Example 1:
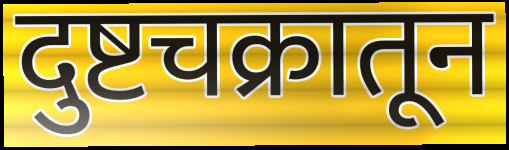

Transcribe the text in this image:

दुष्टचक्रातून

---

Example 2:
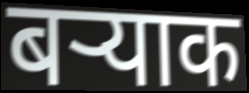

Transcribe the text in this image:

बऱ्याक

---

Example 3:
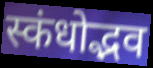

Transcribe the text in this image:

स्कंधोद्भव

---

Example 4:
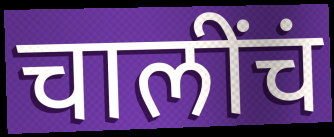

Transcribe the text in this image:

चालींचं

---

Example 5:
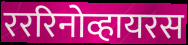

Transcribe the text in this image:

रररिनोव्हायरस